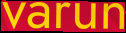
varun